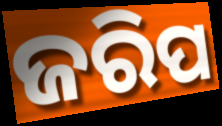
ଜରିପ